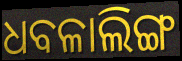
ଧବଳାଲିଙ୍ଗ